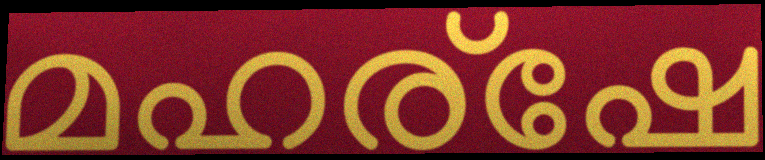
മഹര്ഷേ